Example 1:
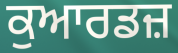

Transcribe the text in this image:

ਕੁਆਰਡਜ਼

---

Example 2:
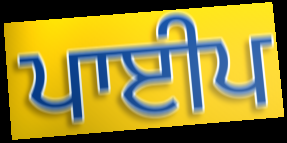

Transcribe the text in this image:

ਪਾਈਪ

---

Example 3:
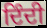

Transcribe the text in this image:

ਦਿੰਦੀ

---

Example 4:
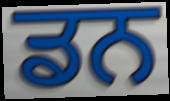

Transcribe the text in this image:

ਡਨ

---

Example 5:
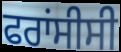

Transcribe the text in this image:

ਫਰਾਂਸੀਸੀ